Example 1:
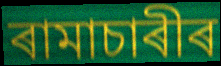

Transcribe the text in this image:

ৰামাচাৰীৰ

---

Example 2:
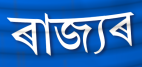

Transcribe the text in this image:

ৰাজ্যৰ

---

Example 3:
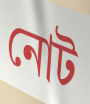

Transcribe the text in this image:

নোট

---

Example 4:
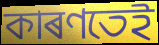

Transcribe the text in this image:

কাৰণতেই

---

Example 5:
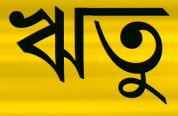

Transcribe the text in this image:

ঋতু